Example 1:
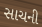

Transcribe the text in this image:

સાચની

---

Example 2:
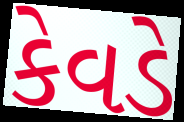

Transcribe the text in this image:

કેવડે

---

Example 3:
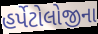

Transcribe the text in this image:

હર્પેટોલોજીના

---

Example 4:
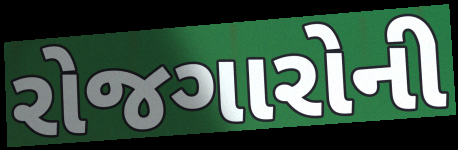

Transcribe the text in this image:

રોજગારોની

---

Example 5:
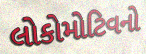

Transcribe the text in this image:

લોકોમોટિવનો